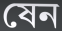
ষেন